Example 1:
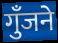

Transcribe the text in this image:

गुँजने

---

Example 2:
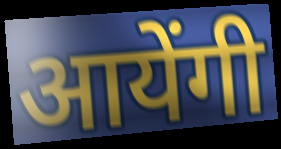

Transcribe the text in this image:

आयेंगी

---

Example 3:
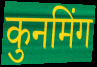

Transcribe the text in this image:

कुनमिंग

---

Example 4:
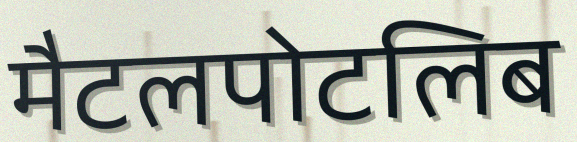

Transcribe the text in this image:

मैटलपोटलिब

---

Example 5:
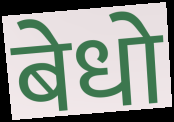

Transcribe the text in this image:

बेधो